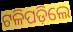
ଟଳିପଡ଼ିଲେ